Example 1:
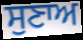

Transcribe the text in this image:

ਸੁਣਾਅ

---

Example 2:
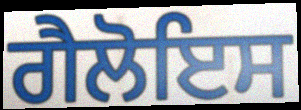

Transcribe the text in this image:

ਗੈਲੋਇਸ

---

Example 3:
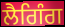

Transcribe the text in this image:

ਲੈਗਿੰਗ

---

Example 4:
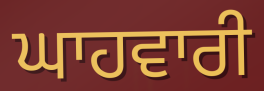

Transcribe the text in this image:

ਘਾਹਵਾਰੀ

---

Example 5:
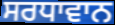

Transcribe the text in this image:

ਸਰਧਾਵਾਨ